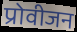
प्रोवीजन